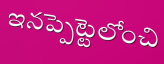
ఇనప్పెట్టెలోంచి